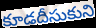
కూడదీసుకుని